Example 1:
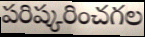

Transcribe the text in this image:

పరిష్కరించగల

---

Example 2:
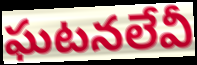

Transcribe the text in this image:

ఘటనలేవీ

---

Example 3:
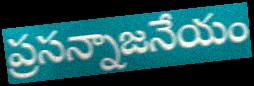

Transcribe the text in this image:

ప్రసన్నాజనేయం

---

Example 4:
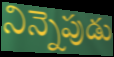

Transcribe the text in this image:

నిన్నెపుడు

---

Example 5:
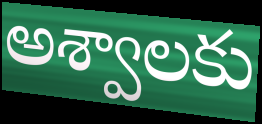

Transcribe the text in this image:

అశ్వాలకు